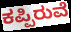
ಕಪ್ಪಿರುವೆ